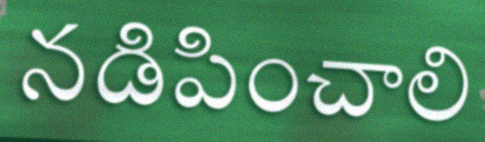
నడిపించాలి